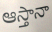
ఆస్తానా